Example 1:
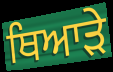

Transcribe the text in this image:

ਥਿਆੜੇ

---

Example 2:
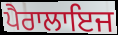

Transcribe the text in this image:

ਪੈਰਾਲਾਇਜ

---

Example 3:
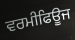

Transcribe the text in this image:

ਵਰਮੀਫਿਊਜ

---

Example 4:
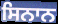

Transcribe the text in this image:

ਸਿਨਾਨ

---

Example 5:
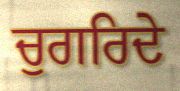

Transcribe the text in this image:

ਚੁਗਰਿਦੇ